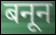
बनून